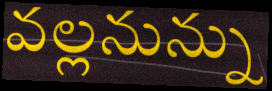
వల్లనున్ను